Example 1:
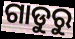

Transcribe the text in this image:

ଗାଡୁରୁ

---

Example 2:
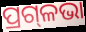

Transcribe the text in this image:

ପ୍ରଗ୍‌ଳଭା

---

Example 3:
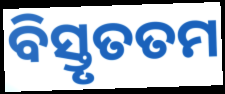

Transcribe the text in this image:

ବିସ୍ତୃତତମ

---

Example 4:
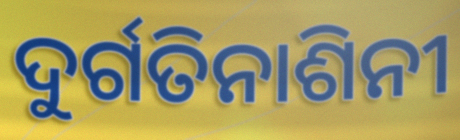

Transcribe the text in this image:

ଦୁର୍ଗତିନାଶିନୀ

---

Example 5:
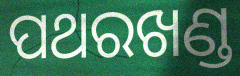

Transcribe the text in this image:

ପଥରଖଣ୍ଡ